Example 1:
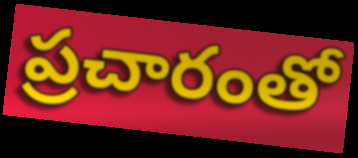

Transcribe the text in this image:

ప్రచారంతో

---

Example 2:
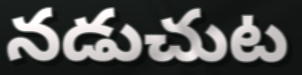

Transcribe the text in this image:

నడుచుట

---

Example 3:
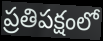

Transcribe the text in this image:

ప్రతిపక్షంలో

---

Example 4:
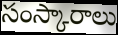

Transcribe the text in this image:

సంస్కారాలు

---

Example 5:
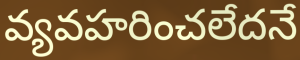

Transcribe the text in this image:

వ్యవహరించలేదనే